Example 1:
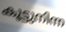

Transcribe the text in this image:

കൂട്ടുനിന്ന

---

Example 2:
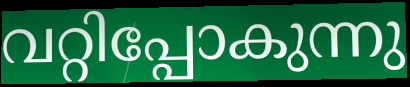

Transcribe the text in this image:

വറ്റിപ്പോകുന്നു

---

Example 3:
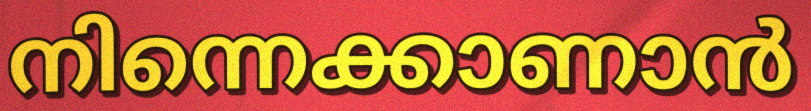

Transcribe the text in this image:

നിന്നെക്കാണാൻ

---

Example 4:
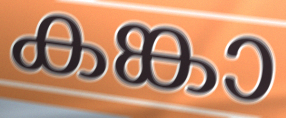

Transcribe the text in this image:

കങ്കാ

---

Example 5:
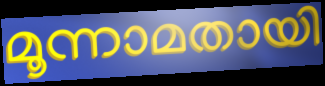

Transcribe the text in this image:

മൂന്നാമതായി